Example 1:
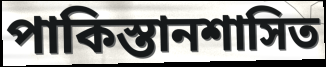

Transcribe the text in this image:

পাকিস্তানশাসিত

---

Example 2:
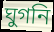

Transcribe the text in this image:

ঘুগনি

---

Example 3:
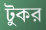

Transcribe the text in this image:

টুকর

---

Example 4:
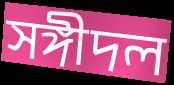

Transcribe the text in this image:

সঙ্গীদল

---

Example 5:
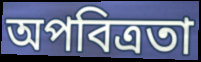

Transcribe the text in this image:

অপবিত্রতা